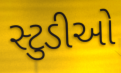
સ્ટુડીઓ